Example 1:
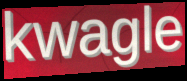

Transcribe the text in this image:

kwagle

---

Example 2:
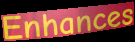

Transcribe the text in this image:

Enhances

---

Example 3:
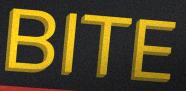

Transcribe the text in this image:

BITE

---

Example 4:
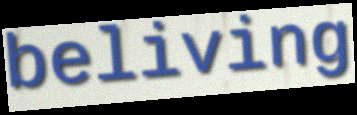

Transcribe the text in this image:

beliving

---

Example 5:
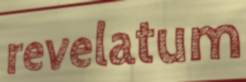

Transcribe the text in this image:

revelatum